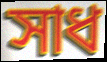
সাধ